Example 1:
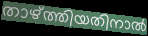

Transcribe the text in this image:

താഴ്ത്തിയതിനാൽ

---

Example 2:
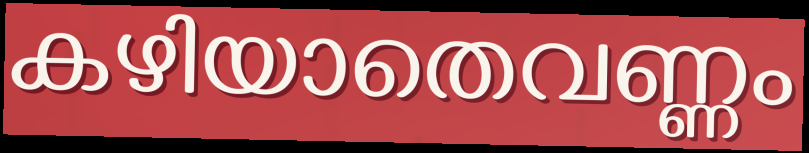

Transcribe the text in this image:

കഴിയാതെവണ്ണം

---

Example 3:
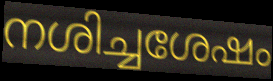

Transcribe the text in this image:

നശിച്ചശേഷം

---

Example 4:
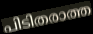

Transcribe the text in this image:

പിടിതരാത്ത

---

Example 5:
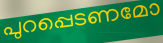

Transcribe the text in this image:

പുറപ്പെടണമോ